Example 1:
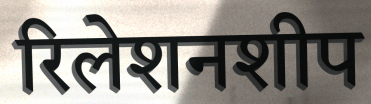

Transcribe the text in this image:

रिलेशनशीप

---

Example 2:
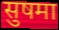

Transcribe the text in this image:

सुषमा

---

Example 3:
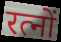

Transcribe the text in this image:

रत्नों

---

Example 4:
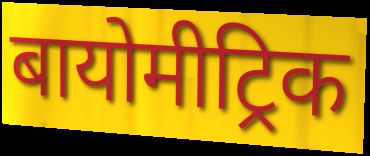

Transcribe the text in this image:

बायोमीट्रिक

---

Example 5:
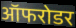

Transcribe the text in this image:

ऑफरोडर